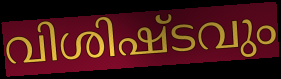
വിശിഷ്ടവും